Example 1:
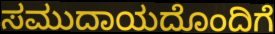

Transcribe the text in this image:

ಸಮುದಾಯದೊಂದಿಗೆ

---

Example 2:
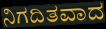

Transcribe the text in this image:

ನಿಗದಿತವಾದ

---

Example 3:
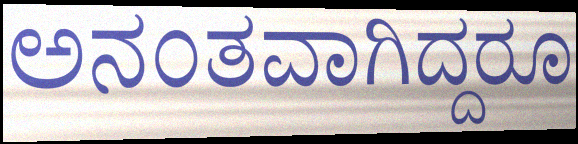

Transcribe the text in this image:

ಅನಂತವಾಗಿದ್ದರೂ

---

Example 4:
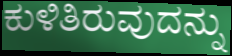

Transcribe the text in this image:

ಕುಳಿತಿರುವುದನ್ನು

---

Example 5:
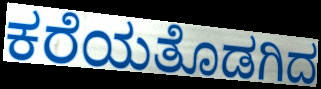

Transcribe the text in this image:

ಕರೆಯತೊಡಗಿದ